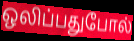
ஒலிப்பதுபோல்